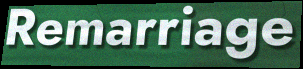
Remarriage